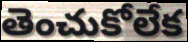
తెంచుకోలేక